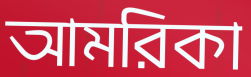
আমরিকা